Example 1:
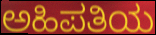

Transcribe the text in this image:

ಅಹಿಪತಿಯ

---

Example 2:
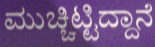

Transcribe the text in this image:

ಮುಚ್ಚಿಟ್ಟಿದ್ದಾನೆ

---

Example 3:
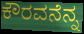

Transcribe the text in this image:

ಕೌರವನೆನ್ನ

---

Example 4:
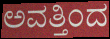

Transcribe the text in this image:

ಅವತ್ತಿಂದ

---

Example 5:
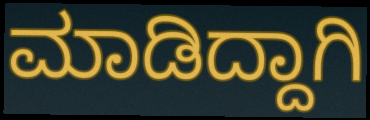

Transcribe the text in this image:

ಮಾಡಿದ್ದಾಗಿ